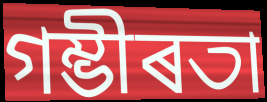
গম্ভীৰতা